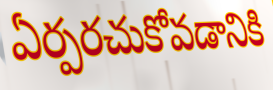
ఏర్పరచుకోవడానికి